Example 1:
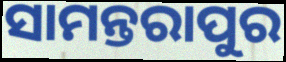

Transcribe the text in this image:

ସାମନ୍ତରାପୁର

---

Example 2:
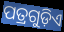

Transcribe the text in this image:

ପତ୍ରଗୁଡ଼ିଏ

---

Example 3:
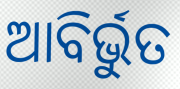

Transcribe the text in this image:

ଆବିର୍ଭୁତ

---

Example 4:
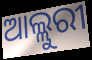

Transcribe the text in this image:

ଆଲ୍ଲୁରୀ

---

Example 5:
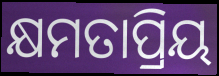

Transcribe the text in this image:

କ୍ଷମତାପ୍ରିୟ